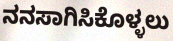
ನನಸಾಗಿಸಿಕೊಳ್ಳಲು